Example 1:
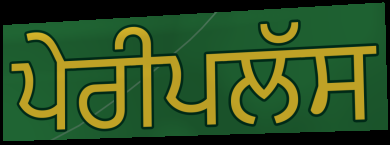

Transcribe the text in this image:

ਪੇਰੀਪਲੱਸ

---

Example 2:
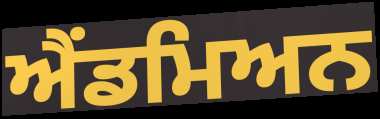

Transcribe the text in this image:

ਐਂਡਮਿਅਨ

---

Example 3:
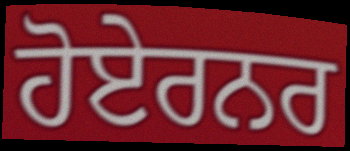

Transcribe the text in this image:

ਹੋਏਰਨਰ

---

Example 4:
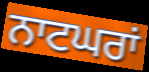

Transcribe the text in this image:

ਨਾਟਘਰਾਂ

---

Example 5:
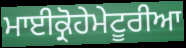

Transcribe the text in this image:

ਮਾਈਕ੍ਰੋਹੇਮੇਟੂਰੀਆ